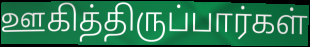
ஊகித்திருப்பார்கள்